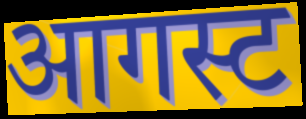
आगस्ट